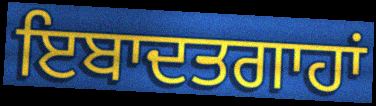
ਇਬਾਦਤਗਾਹਾਂ